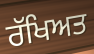
ਰੱਖਿਅਤ